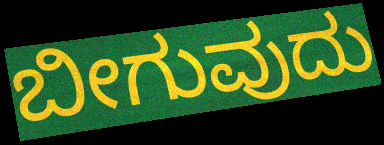
ಬೀಗುವುದು